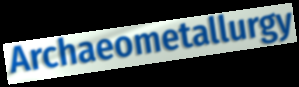
Archaeometallurgy